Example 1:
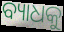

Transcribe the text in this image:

ବ୍ୟାଧକୁ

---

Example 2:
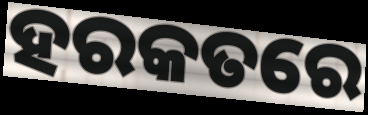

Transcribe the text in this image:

ହରକତରେ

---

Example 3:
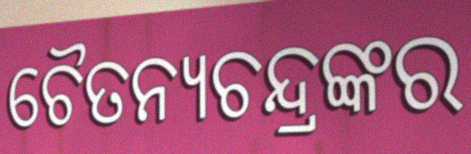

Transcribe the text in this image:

ଚୈତନ୍ୟଚନ୍ଦ୍ରଙ୍କର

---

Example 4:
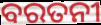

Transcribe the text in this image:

ବରତନୀ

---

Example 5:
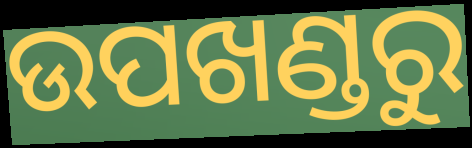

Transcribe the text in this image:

ଉପଖଣ୍ଡରୁ